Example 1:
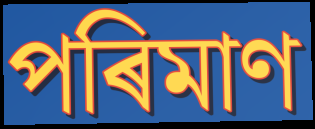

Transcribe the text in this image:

পৰিমাণ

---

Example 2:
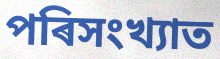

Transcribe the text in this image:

পৰিসংখ্যাত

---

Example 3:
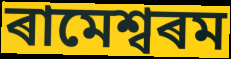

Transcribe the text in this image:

ৰামেশ্বৰম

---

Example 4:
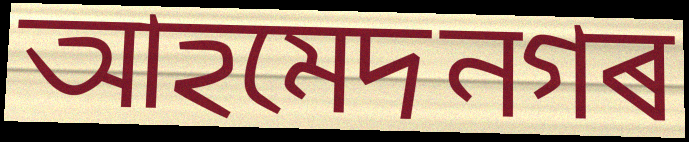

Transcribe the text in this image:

আহমেদনগৰ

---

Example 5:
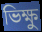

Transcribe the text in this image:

ভিক্ষু